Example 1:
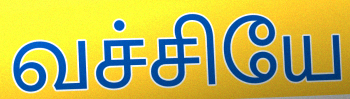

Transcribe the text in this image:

வச்சியே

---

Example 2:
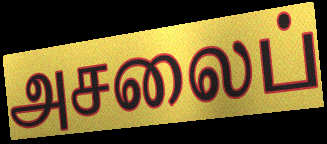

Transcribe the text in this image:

அசலைப்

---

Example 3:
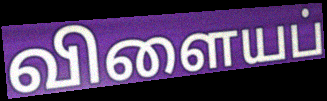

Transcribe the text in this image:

விளையப்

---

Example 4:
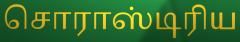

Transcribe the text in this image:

சொராஸ்டிரிய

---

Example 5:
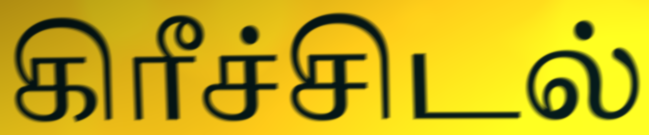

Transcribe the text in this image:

கிரீச்சிடல்